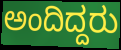
ಅಂದಿದ್ದರು